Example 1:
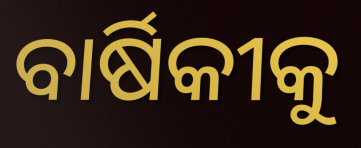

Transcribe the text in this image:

ବାର୍ଷିକୀକୁ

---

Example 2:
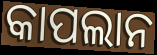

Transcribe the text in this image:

କାପଲାନ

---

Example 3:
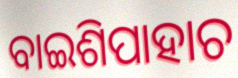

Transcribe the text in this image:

ବାଇଶିପାହାଚ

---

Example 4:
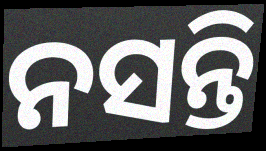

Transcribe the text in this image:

ନସନ୍ତି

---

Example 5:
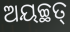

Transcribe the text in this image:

ଅୟଚ୍ଛତ୍